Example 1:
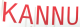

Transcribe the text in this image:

KANNU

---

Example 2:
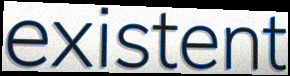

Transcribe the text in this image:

existent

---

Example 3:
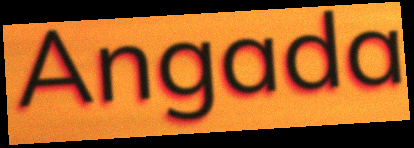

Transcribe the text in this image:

Angada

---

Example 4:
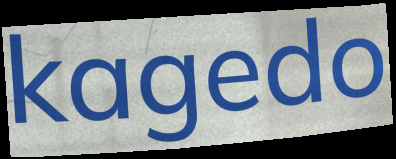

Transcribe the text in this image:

kagedo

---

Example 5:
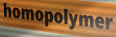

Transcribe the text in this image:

homopolymer